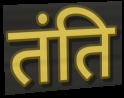
तंति